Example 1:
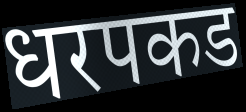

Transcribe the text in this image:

धरपकड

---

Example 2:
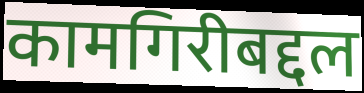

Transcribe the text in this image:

कामगिरीबद्दल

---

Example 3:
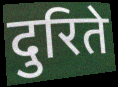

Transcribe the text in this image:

दुरिते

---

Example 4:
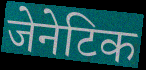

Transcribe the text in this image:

जेनेटिक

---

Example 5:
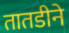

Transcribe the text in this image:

तातडीने